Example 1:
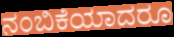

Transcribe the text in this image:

ನಂಬಿಕೆಯಾದರೂ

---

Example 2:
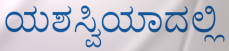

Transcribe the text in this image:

ಯಶಸ್ವಿಯಾದಲ್ಲಿ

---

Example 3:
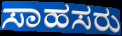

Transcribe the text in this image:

ಸಾಹಸರು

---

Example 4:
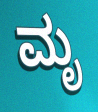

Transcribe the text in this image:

ಮೃ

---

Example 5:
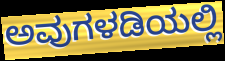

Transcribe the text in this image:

ಅವುಗಳಡಿಯಲ್ಲಿ